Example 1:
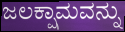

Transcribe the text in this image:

ಜಲಕ್ಷಾಮವನ್ನು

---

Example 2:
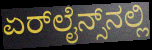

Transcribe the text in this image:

ಏರ್‌ಲೈನ್ಸ್‌ನಲ್ಲಿ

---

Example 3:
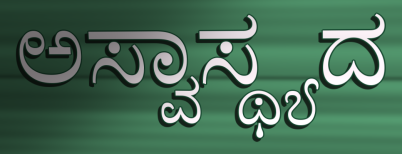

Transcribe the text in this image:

ಅಸ್ವಾಸ್ಥ್ಯದ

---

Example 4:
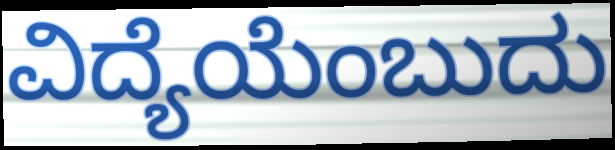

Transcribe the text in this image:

ವಿದ್ಯೆಯೆಂಬುದು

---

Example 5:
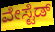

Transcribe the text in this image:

ವೇಸ್ಟೆಡ್